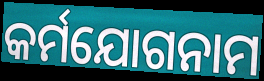
କର୍ମଯୋଗନାମ